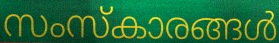
സംസ്കാരങ്ങൾ